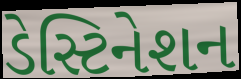
ડેસ્ટિનેશન